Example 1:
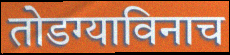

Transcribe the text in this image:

तोडग्याविनाच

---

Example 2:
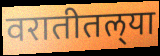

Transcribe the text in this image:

वरातीतल्या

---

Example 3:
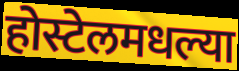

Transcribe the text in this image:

होस्टेलमधल्या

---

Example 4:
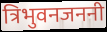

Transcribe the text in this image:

त्रिभुवनजननी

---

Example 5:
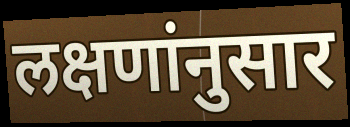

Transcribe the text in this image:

लक्षणांनुसार